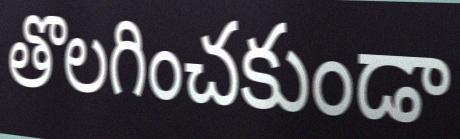
తొలగించకుండా